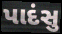
પાદંસુ